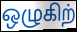
ஒழுகிற்